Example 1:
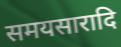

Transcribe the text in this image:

समयसारादि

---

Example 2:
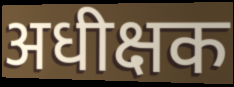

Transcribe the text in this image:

अधीक्षक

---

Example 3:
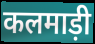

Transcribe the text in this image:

कलमाड़ी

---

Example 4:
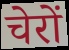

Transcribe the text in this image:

चेरों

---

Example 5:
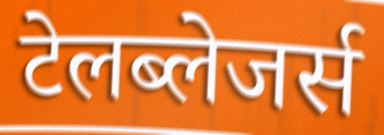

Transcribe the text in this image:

टेलब्लेजर्स